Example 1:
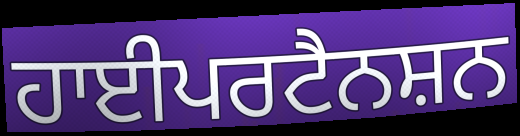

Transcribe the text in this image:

ਹਾਈਪਰਟੈਨਸ਼ਨ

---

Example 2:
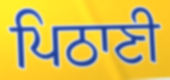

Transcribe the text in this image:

ਪਿਠਾਣੀ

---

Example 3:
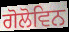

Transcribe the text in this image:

ਗੋਲੋਵਿਨ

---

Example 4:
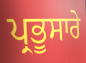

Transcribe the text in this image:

ਪ੍ਰਭੂਸਾਰੇ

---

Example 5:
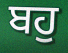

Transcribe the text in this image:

ਬਹੁ